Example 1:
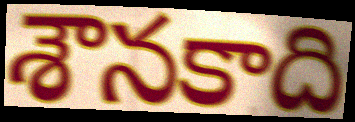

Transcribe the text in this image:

శౌనకాది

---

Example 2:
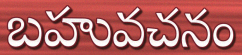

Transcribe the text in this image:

బహువచనం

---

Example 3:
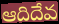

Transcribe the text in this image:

ఆదిదేవ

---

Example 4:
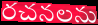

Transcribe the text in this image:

రచనలను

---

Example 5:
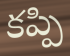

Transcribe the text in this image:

కప్పి